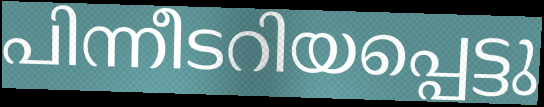
പിന്നീടറിയപ്പെട്ടു